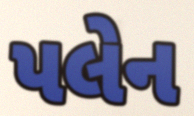
પલેન